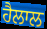
ਹੈਲਾਲ